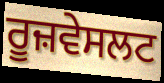
ਰੂਜ਼ਵੇਸਲਟ